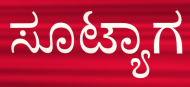
ಸೂಟ್ಯಾಗ